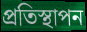
প্রতিস্থাপন